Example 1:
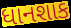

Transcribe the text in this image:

ધાનશાક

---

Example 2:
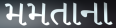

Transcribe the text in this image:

મમતાના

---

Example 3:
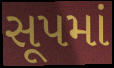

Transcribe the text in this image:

સૂપમાં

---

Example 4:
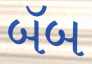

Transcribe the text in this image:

બૅબ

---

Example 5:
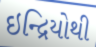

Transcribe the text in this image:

ઇન્દ્રિયોથી